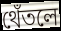
থেঁতলে